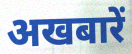
अखबारें